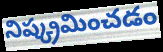
నిష్క్రమించడం